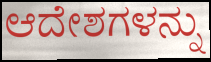
ಆದೇಶಗಳನ್ನು